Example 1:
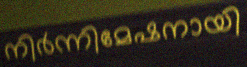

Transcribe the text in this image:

നിർന്നിമേഷനായി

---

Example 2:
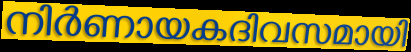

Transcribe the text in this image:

നിർണായകദിവസമായി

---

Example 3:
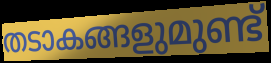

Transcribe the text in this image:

തടാകങ്ങളുമുണ്ട്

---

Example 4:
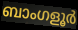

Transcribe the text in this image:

ബാംഗളൂർ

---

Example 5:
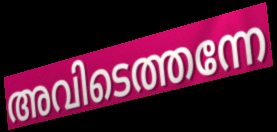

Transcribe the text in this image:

അവിടെത്തന്നേ